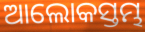
ଆଲୋକସ୍ତମ୍ଭ